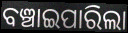
ବଞ୍ଚାଇପାରିଲା